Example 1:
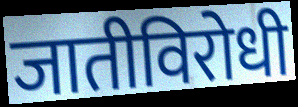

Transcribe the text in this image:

जातीविरोधी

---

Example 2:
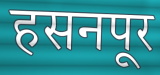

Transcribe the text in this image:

हसनपूर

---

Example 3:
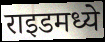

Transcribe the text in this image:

राइडमध्ये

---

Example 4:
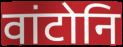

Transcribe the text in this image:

वांटोनि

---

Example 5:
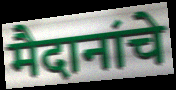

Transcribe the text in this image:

मैदानांचे